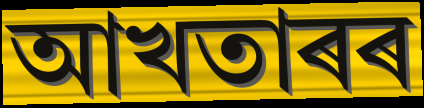
আখতাৰৰ